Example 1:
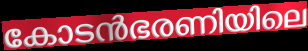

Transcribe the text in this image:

കോടൻഭരണിയിലെ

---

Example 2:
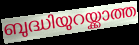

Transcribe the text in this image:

ബുദ്ധിയുറയ്ക്കാത്ത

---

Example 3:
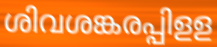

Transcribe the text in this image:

ശിവശങ്കരപ്പിളള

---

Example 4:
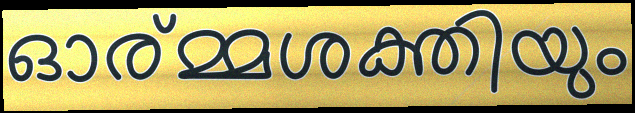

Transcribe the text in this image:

ഓര്മ്മശക്തിയും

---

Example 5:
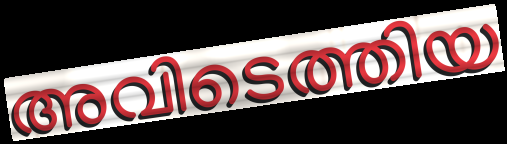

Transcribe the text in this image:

അവിടെത്തിയ